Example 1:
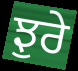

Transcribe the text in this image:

ਝੁਰੇ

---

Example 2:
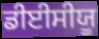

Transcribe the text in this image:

ਡੀਈਸੀਯੂ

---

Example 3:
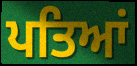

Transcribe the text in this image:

ਪਤਿਆਂ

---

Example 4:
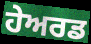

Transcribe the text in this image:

ਹੇਅਰਡ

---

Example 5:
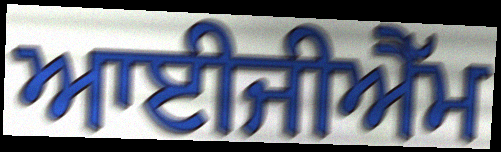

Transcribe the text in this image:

ਆਈਜੀਐੱਮ